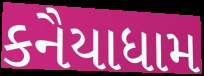
કનૈયાધામ